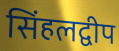
सिंहलद्वीप